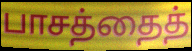
பாசத்தைத்